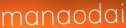
manaodai